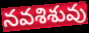
నవశిశువు